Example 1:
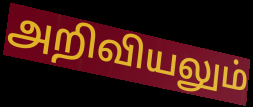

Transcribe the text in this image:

அறிவியலும்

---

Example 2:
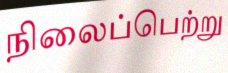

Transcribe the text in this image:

நிலைப்பெற்று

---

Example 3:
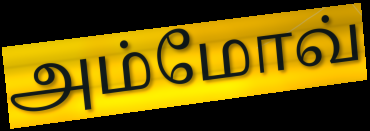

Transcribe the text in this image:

அம்மோவ்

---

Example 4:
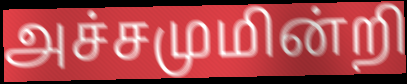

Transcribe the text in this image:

அச்சமுமின்றி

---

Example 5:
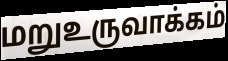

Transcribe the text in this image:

மறுஉருவாக்கம்